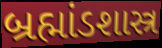
બ્રહ્માંડશાસ્ત્ર